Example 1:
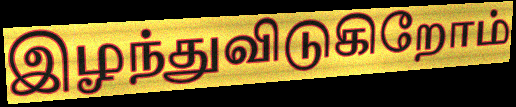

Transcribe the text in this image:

இழந்துவிடுகிறோம்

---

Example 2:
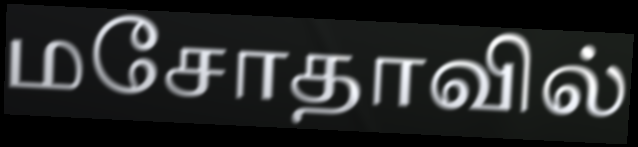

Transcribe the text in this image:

மசோதாவில்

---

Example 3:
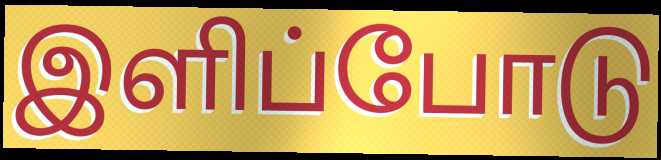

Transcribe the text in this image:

இளிப்போடு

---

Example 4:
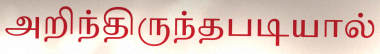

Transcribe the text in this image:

அறிந்திருந்தபடியால்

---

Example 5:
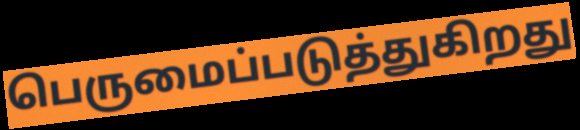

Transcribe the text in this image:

பெருமைப்படுத்துகிறது